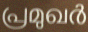
പ്രമുഖർ